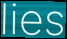
lies